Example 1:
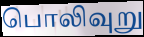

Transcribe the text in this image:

பொலிவுறு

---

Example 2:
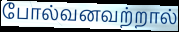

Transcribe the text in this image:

போல்வனவற்றால்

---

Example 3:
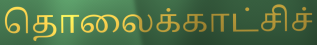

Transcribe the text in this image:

தொலைக்காட்சிச்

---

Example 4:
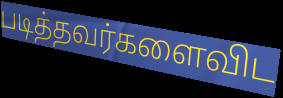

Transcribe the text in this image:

படித்தவர்களைவிட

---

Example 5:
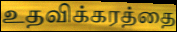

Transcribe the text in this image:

உதவிக்கரத்தை